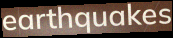
earthquakes